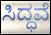
ಸಿದ್ಧವೆ